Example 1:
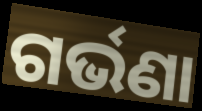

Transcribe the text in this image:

ଗର୍ଭଣା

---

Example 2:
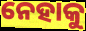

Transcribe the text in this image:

ନେହାକୁ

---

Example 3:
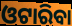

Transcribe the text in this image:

ଓଟାରିବା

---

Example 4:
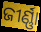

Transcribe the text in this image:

ଜୀର୍ଣ୍ଣା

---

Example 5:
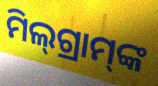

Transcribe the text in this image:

ମିଲ୍‌ଗ୍ରାମ୍‌ଙ୍କ